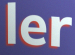
ler